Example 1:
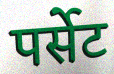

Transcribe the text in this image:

पर्सेट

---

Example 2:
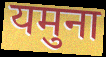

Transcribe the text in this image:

यमुना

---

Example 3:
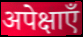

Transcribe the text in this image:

अपेक्षाएँ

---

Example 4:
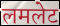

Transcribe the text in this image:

लमलेट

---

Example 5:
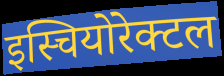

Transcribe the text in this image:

इस्चियोरेक्टल